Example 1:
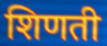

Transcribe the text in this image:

शिणती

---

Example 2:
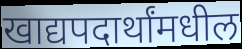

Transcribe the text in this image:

खाद्यपदार्थांमधील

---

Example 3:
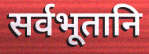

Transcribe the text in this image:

सर्वभूतानि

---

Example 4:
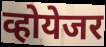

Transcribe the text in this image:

व्होयेजर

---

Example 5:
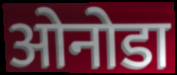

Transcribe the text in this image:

ओनोडा